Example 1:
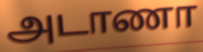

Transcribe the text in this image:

அடாணா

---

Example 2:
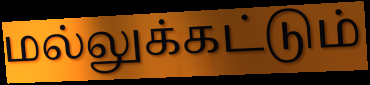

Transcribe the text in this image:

மல்லுக்கட்டும்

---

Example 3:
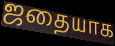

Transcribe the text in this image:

ஜதையாக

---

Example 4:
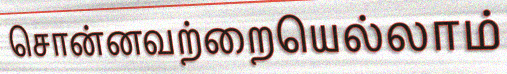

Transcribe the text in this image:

சொன்னவற்றையெல்லாம்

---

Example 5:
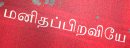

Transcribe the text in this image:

மனிதப்பிறவியே